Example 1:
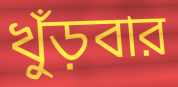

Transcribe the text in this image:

খুঁড়বার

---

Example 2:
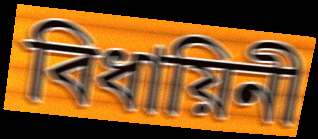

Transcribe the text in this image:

বিধায়িনী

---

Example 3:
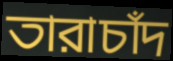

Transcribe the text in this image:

তারাচাঁদ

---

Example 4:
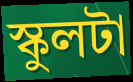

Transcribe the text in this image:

স্কুলটা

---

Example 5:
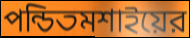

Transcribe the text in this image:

পন্ডিতমশাইয়ের